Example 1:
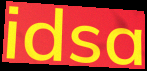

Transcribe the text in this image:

idsa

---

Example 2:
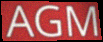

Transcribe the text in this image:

AGM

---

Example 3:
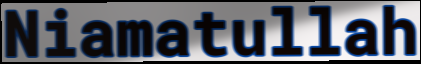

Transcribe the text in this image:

Niamatullah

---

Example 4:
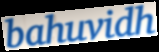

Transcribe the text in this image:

bahuvidh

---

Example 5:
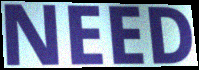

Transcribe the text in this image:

NEED